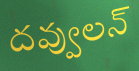
దవ్వులన్